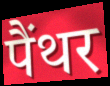
पैंथर